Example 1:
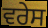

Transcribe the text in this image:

ਵਰੇਸ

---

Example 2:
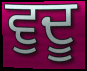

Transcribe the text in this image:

ਵੁਦੂ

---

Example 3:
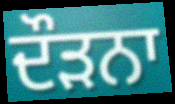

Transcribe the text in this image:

ਦੌੜਨਾ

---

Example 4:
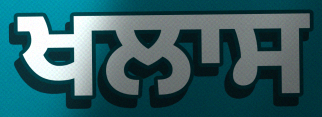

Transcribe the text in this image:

ਖਲਾਸ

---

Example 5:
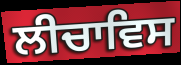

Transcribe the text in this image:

ਲੀਚਾਵਿਸ